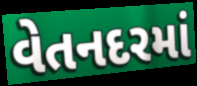
વેતનદરમાં